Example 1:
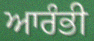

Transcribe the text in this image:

ਆਰੰਭੀ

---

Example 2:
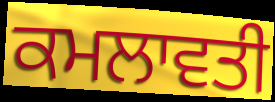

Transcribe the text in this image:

ਕਮਲਾਵਤੀ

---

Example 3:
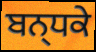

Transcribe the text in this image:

ਬਨ੍ਧਕੇ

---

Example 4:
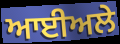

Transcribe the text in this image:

ਆਈਅਲੇ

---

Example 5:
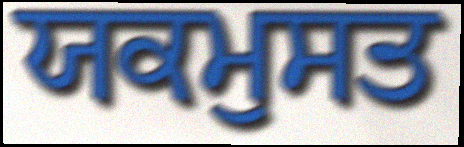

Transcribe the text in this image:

ਯਕਮੁਸਤ